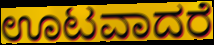
ಊಟವಾದರೆ